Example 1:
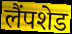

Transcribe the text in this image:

लैंपशेड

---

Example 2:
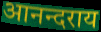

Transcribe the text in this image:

आनन्दराय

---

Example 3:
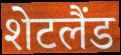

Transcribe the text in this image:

शेटलैंड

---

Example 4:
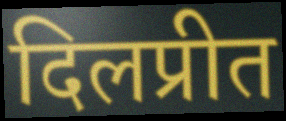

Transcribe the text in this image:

दिलप्रीत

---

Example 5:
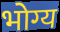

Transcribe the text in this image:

भोग्य